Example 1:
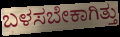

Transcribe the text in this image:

ಬಳಸಬೇಕಾಗಿತ್ತು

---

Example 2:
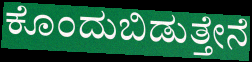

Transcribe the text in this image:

ಕೊಂದುಬಿಡುತ್ತೇನೆ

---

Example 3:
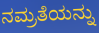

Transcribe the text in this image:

ನಮ್ರತೆಯನ್ನು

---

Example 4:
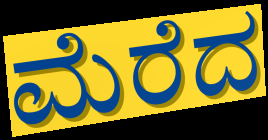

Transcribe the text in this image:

ಮೆರೆದ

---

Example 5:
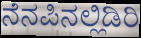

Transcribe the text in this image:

ನೆನಪಿನಲ್ಲಿಡಿರಿ